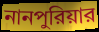
নানপুরিয়ার